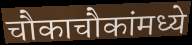
चौकाचौकांमध्ये